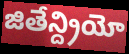
జితేన్ద్రియో